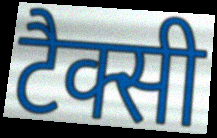
टैक्सी